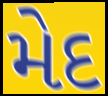
મેદ